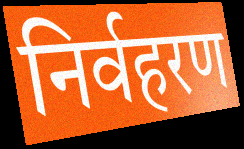
निर्वहरण